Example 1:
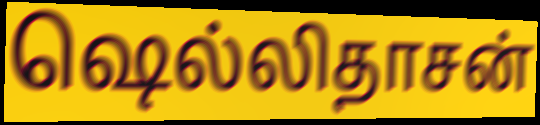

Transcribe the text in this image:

ஷெல்லிதாசன்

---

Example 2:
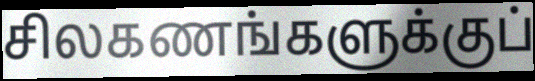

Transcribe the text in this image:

சிலகணங்களுக்குப்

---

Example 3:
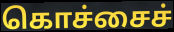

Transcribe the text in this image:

கொச்சைச்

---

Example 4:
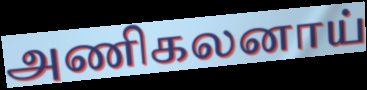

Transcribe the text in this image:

அணிகலனாய்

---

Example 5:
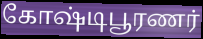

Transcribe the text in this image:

கோஷ்டிபூரணர்